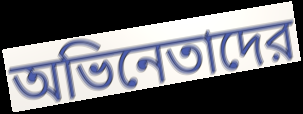
অভিনেতাদের